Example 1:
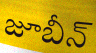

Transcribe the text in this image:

జూబీన్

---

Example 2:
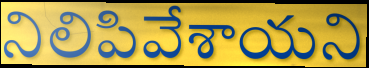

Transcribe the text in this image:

నిలిపివేశాయని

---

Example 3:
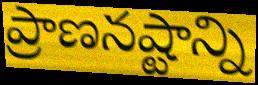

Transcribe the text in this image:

ప్రాణనష్టాన్ని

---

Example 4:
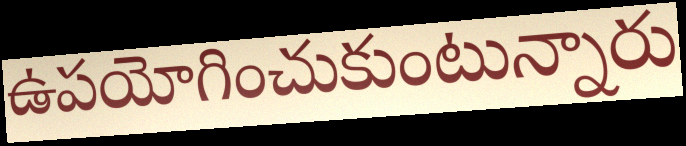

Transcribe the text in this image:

ఉపయోగించుకుంటున్నారు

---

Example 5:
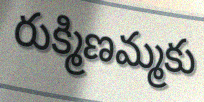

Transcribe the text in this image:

రుక్మిణమ్మకు